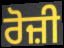
ਰੋਜ਼ੀ